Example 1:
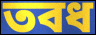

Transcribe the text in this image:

তবধ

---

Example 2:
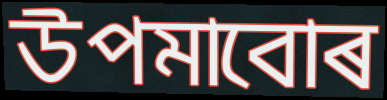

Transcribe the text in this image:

উপমাবোৰ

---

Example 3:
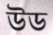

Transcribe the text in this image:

উড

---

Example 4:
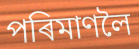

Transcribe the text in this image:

পৰিমাণলৈ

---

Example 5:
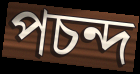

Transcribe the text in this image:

পচন্দ